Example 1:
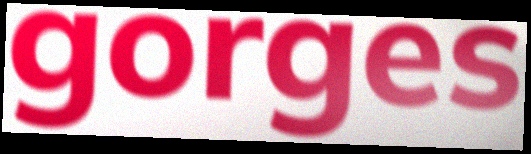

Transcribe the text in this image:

gorges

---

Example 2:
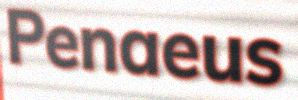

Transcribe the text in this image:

Penaeus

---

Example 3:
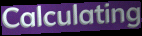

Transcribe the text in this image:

Calculating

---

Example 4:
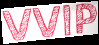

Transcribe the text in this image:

VVIP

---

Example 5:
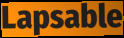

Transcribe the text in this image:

Lapsable